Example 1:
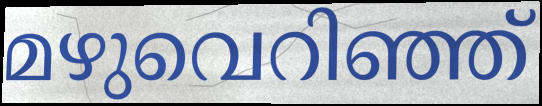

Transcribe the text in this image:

മഴുവെറിഞ്ഞ്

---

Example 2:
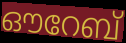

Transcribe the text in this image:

ഔറേബ്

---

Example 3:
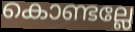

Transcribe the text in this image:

കൊണ്ടല്ലേ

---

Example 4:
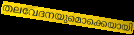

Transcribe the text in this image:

തലവേദനയുമൊക്കെയായി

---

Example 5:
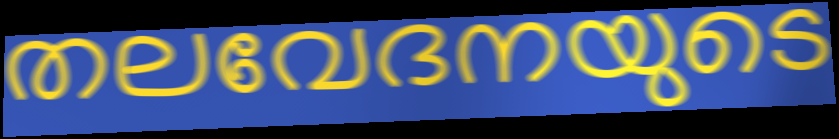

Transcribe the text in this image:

തലവേദനയുടെ